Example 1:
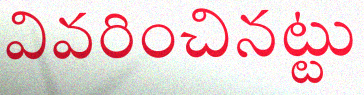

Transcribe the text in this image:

వివరించినట్టు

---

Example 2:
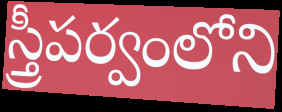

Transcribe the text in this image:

స్త్రీపర్వంలోని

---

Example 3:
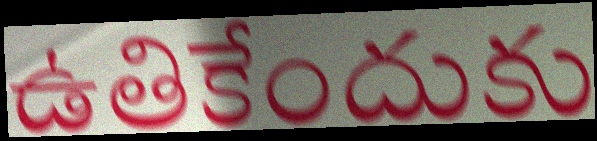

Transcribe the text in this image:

ఉతికేందుకు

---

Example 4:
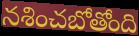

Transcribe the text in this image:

నశించబోతోంది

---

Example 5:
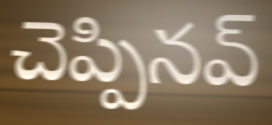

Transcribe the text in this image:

చెప్పినవ్